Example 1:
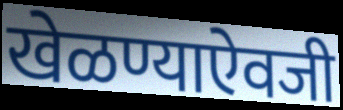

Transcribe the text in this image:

खेळण्याऐवजी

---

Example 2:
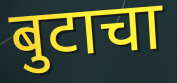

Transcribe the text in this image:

बुटाचा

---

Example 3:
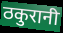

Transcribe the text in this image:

ठकुरानी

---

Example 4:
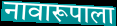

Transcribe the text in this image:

नावारूपाला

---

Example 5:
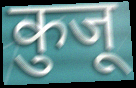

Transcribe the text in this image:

कुजू